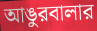
আঙুরবালার